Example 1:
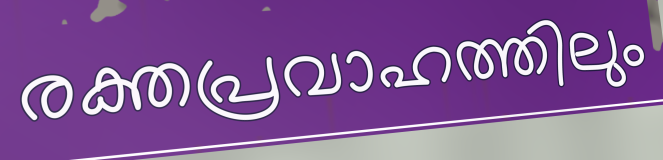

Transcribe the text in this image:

രക്തപ്രവാഹത്തിലും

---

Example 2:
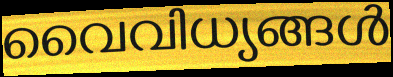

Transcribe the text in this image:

വൈവിധ്യങ്ങൾ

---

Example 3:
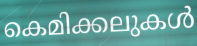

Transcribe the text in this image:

കെമിക്കലുകൾ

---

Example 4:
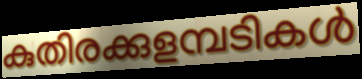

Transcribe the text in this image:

കുതിരക്കുളമ്പടികൾ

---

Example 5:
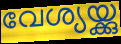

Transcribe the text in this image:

വേശ്യയ്ക്കു